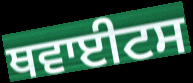
ਥਵਾਈਟਸ